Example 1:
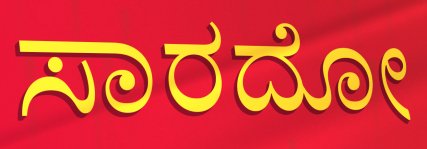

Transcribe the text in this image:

ಸಾರದೋ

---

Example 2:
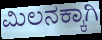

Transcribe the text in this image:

ಮಿಲನಕ್ಕಾಗಿ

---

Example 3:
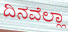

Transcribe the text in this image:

ದಿನವೆಲ್ಲಾ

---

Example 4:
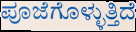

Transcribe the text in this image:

ಪೂಜೆಗೊಳ್ಳುತ್ತಿದೆ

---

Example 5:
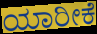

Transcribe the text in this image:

ಯಾರೀಕೆ